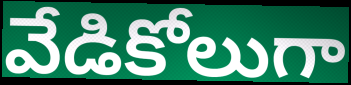
వేడికోలుగా